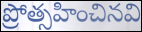
ప్రోత్సహించినవి